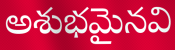
అశుభమైనవి